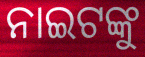
ନାଇଟଙ୍କୁ